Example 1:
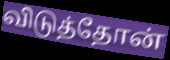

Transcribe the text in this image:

விடுத்தோன்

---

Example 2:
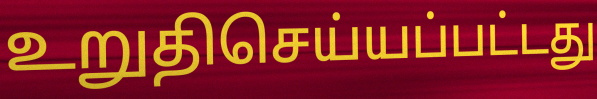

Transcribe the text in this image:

உறுதிசெய்யப்பட்டது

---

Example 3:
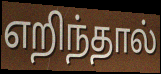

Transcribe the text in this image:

எறிந்தால்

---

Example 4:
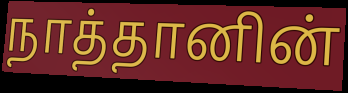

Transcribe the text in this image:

நாத்தானின்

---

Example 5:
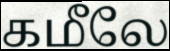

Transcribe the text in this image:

கமீலே